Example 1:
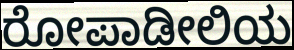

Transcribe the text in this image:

ರೋಪಾಡೀಲಿಯ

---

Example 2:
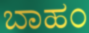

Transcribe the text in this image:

ಬಾಹಂ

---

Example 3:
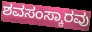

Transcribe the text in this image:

ಶವಸಂಸ್ಕಾರವು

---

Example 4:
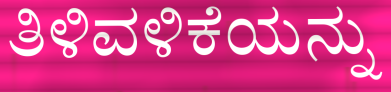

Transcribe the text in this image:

ತಿಳಿವಳಿಕೆಯನ್ನು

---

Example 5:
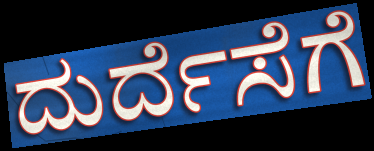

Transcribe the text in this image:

ದುರ್ದೆಸೆಗೆ